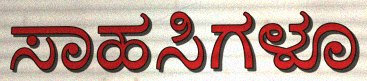
ಸಾಹಸಿಗಳೂ